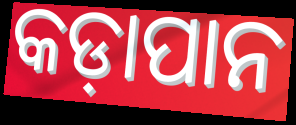
କଡ଼ାପାନ